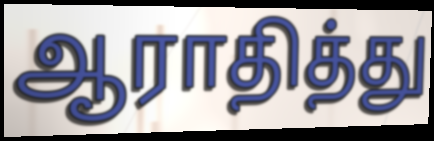
ஆராதித்து